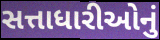
સત્તાધારીઓનું